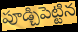
పూడ్చిపెట్టిన